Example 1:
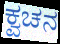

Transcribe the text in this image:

ಕ್ವಚನ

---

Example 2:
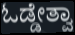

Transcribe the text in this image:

ಓಡ್ಡೇತ್ವಾ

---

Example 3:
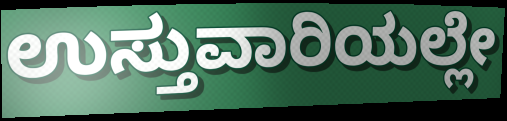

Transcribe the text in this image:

ಉಸ್ತುವಾರಿಯಲ್ಲೇ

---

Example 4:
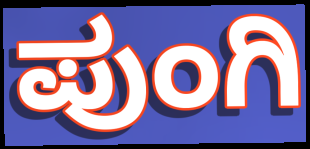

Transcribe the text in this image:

ಪುಂಗಿ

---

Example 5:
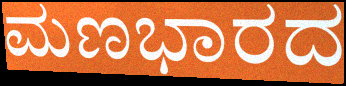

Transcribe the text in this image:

ಮಣಭಾರದ